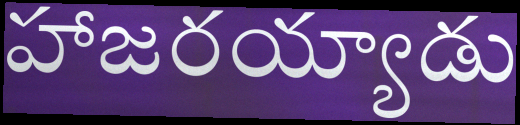
హాజరయ్యాడు